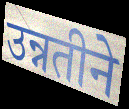
उन्नतीने